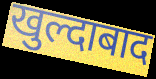
खुल्दाबाद